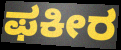
ಫಕೀರ